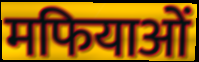
मफियाओं